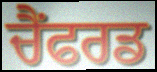
ਚੈਂਫਰਡ